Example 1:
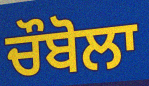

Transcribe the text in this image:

ਚੌਬੋਲਾ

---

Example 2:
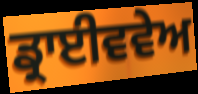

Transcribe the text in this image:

ਡ੍ਰਾਈਵਵੇਅ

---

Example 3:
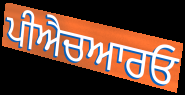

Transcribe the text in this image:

ਪੀਐਚਆਰਓ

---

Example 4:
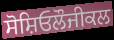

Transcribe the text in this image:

ਸੋਸ਼ਿਓਲੌਜੀਕਲ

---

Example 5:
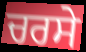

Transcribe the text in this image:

ਚਰਸੇ